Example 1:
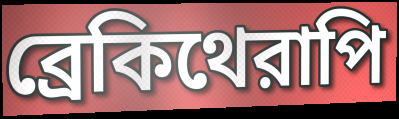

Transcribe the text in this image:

ব্রেকিথেরাপি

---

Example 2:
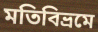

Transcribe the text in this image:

মতিবিভ্রমে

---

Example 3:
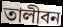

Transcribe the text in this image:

তালীবন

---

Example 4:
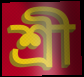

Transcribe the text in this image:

শ্রী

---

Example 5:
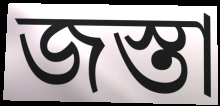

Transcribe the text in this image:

জস্তা